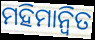
ମହିମାନ୍ଵିତ